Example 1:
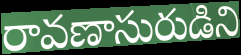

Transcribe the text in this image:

రావణాసురుడిని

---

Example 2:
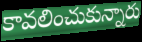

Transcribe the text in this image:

కావలించుకున్నారు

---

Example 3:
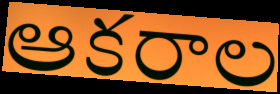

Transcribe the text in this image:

ఆకరాల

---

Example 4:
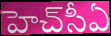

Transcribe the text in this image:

హెచ్‌సీఏ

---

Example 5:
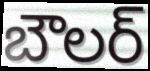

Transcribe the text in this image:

బౌలర్